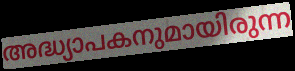
അദ്ധ്യാപകനുമായിരുന്ന